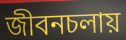
জীবনচলায়